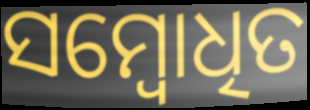
ସମ୍ବୋଧିତ